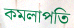
কমলাপতি